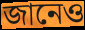
জানেও